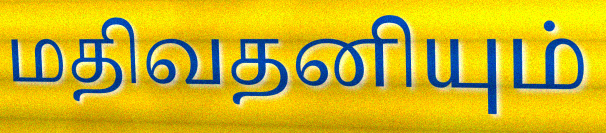
மதிவதனியும்